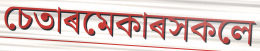
চেতাৰমেকাৰসকলে